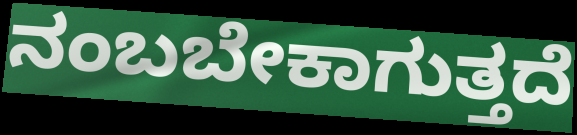
ನಂಬಬೇಕಾಗುತ್ತದೆ